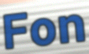
Fon